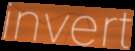
invert